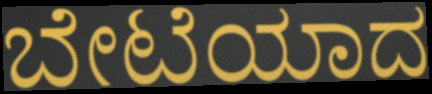
ಬೇಟೆಯಾದ